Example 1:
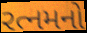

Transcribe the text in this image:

રત્નમનો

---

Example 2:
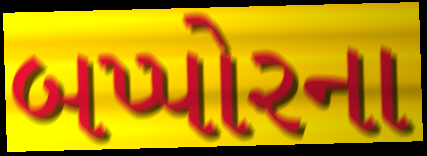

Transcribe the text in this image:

બપ્પોરના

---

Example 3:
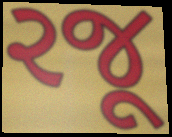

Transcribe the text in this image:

રજૂ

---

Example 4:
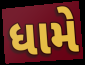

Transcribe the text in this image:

ધામે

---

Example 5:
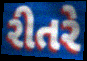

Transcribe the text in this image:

રીતરે